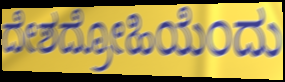
ದೇಶದ್ರೋಹಿಯೆಂದು